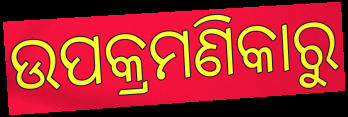
ଉପକ୍ରମଣିକାରୁ